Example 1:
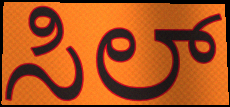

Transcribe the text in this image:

ಸಿಲ್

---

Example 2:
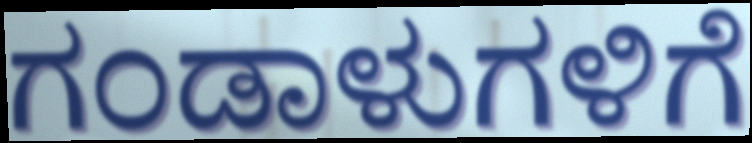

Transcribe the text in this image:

ಗಂಡಾಳುಗಳಿಗೆ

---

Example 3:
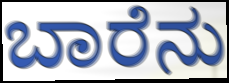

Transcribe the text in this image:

ಬಾರೆನು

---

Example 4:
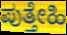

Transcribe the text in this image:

ಪುತ್ತೇಹಿ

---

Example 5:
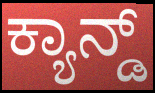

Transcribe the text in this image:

ಕ್ಯಾನ್ಡ್